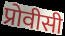
प्रोवीसी